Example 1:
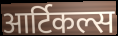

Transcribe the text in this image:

आर्टिकल्स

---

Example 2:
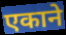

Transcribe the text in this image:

एकाने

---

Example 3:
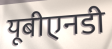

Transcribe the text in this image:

यूबीएनडी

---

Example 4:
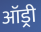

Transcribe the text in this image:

ऑड्री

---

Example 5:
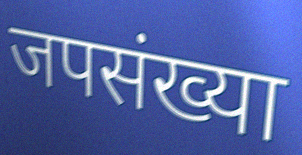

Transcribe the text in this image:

जपसंख्या